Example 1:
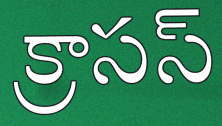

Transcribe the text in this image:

క్రాసస్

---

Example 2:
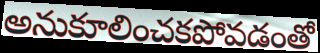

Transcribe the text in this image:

అనుకూలించకపోవడంతో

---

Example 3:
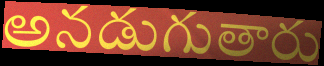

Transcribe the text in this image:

అనడుగుతారు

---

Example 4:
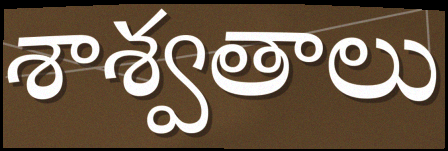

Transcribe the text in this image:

శాశ్వతాలు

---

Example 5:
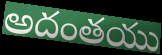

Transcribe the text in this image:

అదంతయు